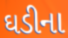
ઘડીના